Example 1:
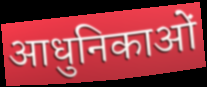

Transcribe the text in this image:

आधुनिकाओं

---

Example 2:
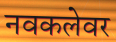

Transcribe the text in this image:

नवकलेवर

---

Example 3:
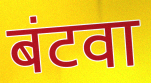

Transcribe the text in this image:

बंटवा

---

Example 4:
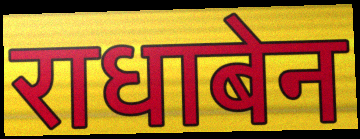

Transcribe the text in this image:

राधाबेन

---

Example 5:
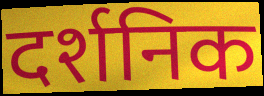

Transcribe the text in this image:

दर्शनिक